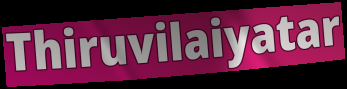
Thiruvilaiyatar